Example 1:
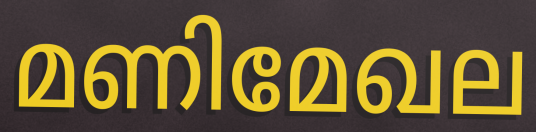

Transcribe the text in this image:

മണിമേഖല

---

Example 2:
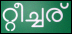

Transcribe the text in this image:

റ്റീച്ചര്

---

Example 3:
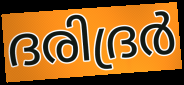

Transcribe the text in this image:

ദരിദ്രർ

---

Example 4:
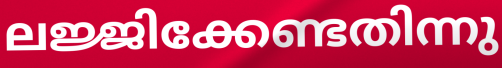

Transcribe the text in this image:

ലജ്ജിക്കേണ്ടതിന്നു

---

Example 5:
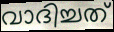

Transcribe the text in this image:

വാദിച്ചത്